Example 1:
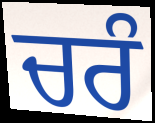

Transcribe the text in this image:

ਚਰੰ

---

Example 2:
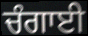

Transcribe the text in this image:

ਚੰਗਾਈ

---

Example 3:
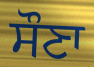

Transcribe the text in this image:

ਸੌਣਾ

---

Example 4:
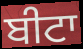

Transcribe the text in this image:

ਬੀਟਾ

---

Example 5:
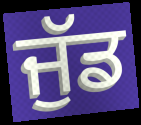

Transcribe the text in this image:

ਜੁੱਡ